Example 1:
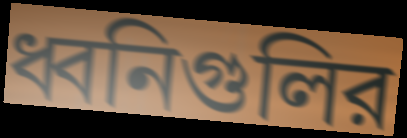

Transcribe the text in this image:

ধ্বনিগুলির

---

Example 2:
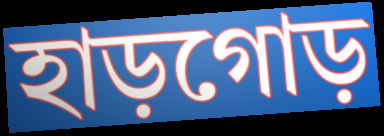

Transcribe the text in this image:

হাড়গোড়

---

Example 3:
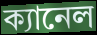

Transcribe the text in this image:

ক্যানেল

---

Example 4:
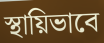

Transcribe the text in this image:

স্থায়িভাবে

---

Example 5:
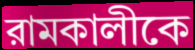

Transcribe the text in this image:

রামকালীকে